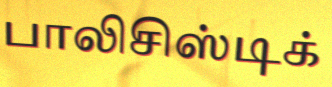
பாலிசிஸ்டிக்